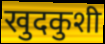
खुदकुशी